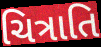
ચિત્રાતિ